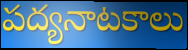
పద్యనాటకాలు